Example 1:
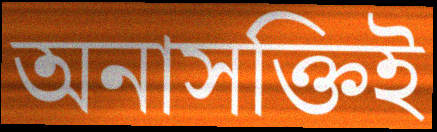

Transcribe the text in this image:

অনাসক্তিই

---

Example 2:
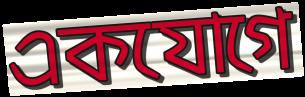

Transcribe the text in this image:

একযোগে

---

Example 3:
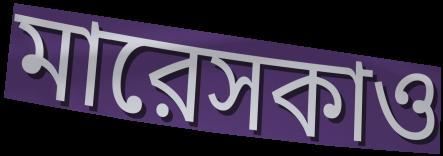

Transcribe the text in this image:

মারেসকাও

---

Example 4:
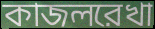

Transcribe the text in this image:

কাজলরেখা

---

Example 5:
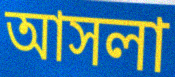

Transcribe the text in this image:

আসলা